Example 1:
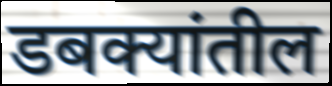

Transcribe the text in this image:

डबक्यांतील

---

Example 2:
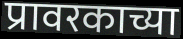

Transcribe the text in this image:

प्रावरकाच्या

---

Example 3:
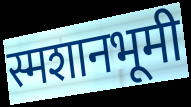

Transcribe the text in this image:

स्मशानभूमी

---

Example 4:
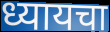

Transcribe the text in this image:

ध्यायचा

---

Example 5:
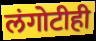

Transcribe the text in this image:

लंगोटीही